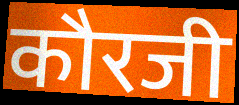
कौरजी